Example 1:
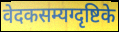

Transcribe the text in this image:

वेदकसम्यग्दृष्टिके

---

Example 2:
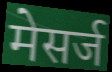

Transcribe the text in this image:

मेसर्ज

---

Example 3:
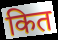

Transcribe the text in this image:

कित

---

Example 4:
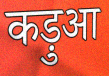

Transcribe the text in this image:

कड़ुआ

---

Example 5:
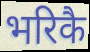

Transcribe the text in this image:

भरिकै